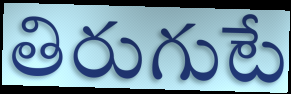
తిరుగుటే